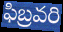
ఫిబ్రవరి